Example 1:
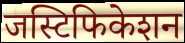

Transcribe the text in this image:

जस्टिफिकेशन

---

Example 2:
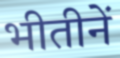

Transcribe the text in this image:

भीतीनें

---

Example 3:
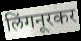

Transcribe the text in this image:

लिंगनूरकर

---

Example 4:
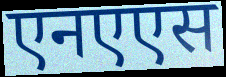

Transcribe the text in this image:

एनएएस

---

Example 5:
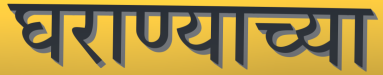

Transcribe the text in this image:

घराण्याच्या